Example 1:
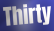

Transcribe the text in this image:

Thirty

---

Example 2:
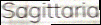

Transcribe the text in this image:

Sagittaria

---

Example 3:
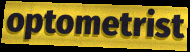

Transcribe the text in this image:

optometrist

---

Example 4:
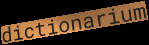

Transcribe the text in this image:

dictionarium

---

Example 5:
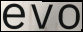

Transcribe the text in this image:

evo